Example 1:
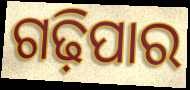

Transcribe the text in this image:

ଗଢ଼ିପାର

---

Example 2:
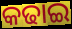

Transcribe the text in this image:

କଢାଇ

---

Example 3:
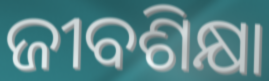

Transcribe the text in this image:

ଜୀବଶିକ୍ଷା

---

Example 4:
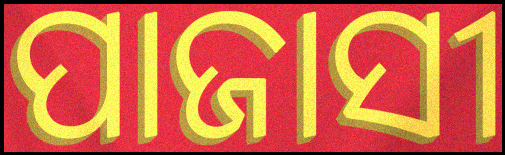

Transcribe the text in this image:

ପାଜାସୀ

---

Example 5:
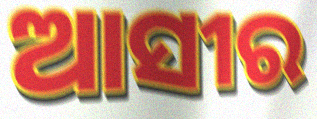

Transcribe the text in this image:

ଆସୀର